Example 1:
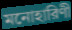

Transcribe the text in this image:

মনোহারিণী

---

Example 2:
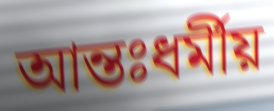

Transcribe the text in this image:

আন্তঃধর্মীয়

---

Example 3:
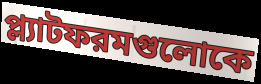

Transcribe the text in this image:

প্ল্যাটফরমগুলোকে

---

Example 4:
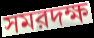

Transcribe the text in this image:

সমরদক্ষ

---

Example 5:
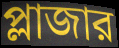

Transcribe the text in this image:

প্লাজার